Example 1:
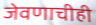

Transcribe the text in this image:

जेवणाचीही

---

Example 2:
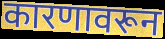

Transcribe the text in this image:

कारणावरून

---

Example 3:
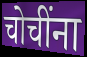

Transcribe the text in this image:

चोचींना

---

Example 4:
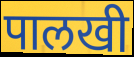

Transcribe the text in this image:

पालखी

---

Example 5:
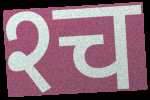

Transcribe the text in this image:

श्च